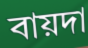
বায়দা